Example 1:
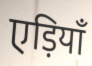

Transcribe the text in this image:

एड़ियाँ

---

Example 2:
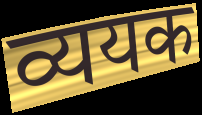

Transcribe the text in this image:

व्ययक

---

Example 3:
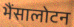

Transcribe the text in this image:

भैंसालोटन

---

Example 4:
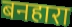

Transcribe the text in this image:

बनहारा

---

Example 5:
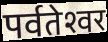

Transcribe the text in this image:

पर्वतेश्वर